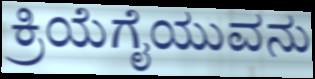
ಕ್ರಿಯೆಗೈಯುವನು